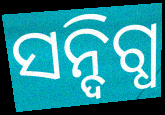
ସନ୍ଦିଗ୍ଧ